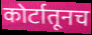
कोर्टातूनच